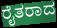
ರೈತರಾದ